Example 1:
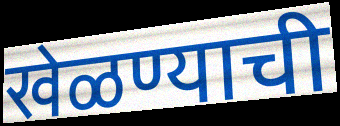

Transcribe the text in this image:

खेळण्याची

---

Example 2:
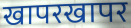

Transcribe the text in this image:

खापरखापर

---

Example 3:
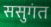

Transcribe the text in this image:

ससुगंत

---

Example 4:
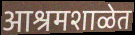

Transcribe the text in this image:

आश्रमशाळेत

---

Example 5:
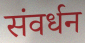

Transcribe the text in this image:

संवर्धन